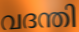
വദന്തി